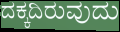
ದಕ್ಕದಿರುವುದು